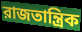
রাজতান্ত্রিক